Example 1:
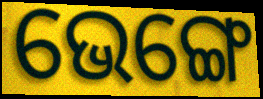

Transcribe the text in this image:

ଭେଙ୍ଗେ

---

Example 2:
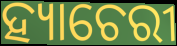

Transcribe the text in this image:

ହ୍ୟାଚେରୀ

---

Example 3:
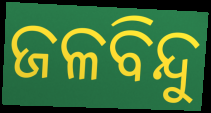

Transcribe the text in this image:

ଜଳବିନ୍ଦୁ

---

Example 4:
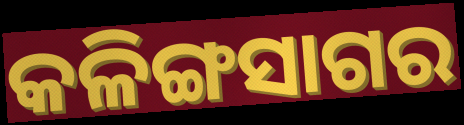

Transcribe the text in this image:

କଳିଙ୍ଗସାଗର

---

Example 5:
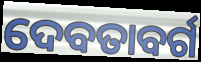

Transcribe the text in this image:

ଦେବତାବର୍ଗ